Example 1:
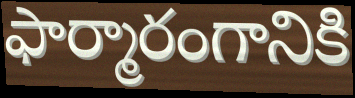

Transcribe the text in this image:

ఫార్మారంగానికి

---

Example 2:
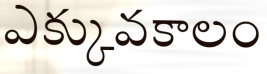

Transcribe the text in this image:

ఎక్కువకాలం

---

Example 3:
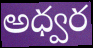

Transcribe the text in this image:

అధ్వర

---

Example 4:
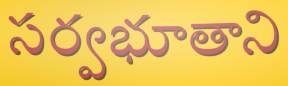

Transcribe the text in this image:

సర్వభూతాని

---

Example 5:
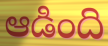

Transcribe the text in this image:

ఆడింది